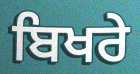
ਬਿਖਰੇ